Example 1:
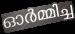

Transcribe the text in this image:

ഓർമ്മിച്ച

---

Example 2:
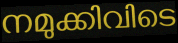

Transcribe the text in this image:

നമുക്കിവിടെ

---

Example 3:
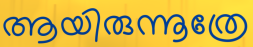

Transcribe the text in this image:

ആയിരുന്നൂത്രേ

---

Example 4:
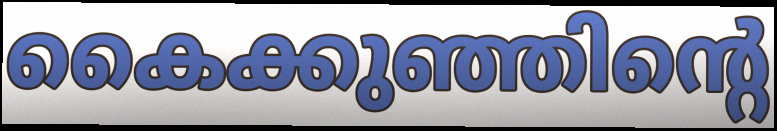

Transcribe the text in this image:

കൈക്കുഞ്ഞിന്റെ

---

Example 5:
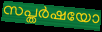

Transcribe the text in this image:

സപ്തർഷയോ